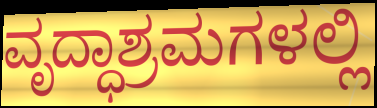
ವೃದ್ಧಾಶ್ರಮಗಳಲ್ಲಿ